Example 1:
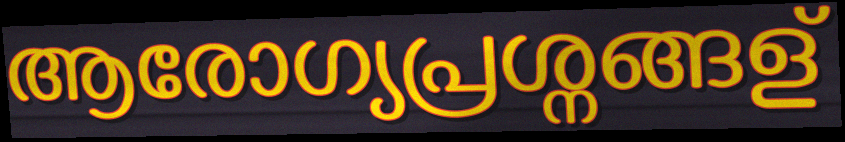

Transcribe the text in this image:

ആരോഗ്യപ്രശ്നങ്ങള്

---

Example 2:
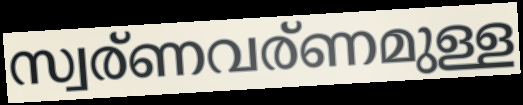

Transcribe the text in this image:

സ്വര്ണവര്ണമുള്ള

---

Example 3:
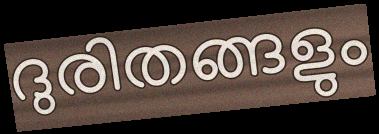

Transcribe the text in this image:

ദുരിതങ്ങളും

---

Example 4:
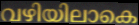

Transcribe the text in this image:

വഴിയിലാകെ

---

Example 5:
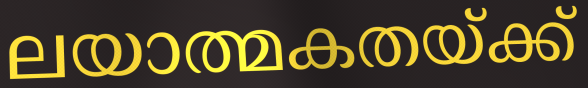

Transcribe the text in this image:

ലയാത്മകതയ്ക്ക്